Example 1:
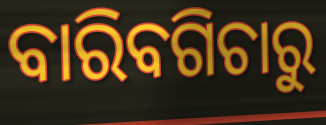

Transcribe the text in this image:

ବାରିବଗିଚାରୁ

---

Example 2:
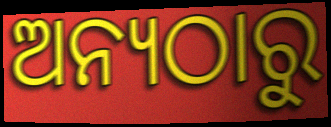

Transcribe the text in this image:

ଅନ୍ୟଠାରୁ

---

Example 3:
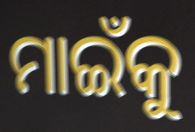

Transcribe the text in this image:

ମାଇଁକୁ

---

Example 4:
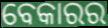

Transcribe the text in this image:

ବେକାରର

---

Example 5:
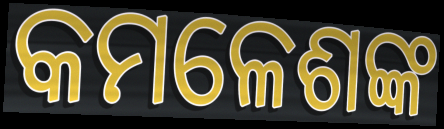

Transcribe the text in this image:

କମଳେଶଙ୍କ